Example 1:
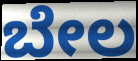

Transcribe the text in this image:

ಬೇಲ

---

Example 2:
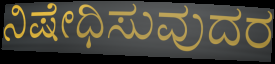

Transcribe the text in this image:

ನಿಷೇಧಿಸುವುದರ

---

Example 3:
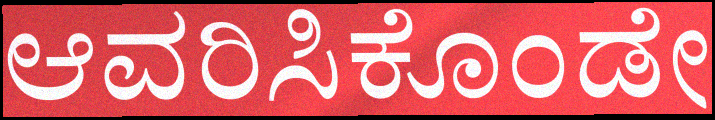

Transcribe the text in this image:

ಆವರಿಸಿಕೊಂಡೇ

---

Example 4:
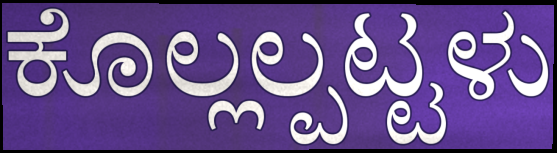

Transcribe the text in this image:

ಕೊಲ್ಲಲ್ಪಟ್ಟಳು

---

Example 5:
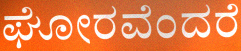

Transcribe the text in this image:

ಘೋರವೆಂದರೆ